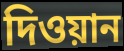
দিওয়ান